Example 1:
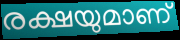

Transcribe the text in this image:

രക്ഷയുമാണ്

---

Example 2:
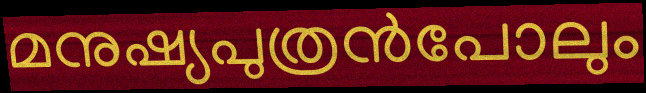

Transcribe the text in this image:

മനുഷ്യപുത്രൻപോലും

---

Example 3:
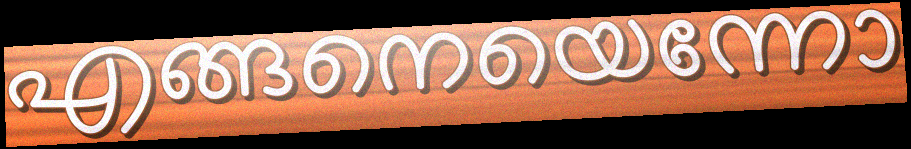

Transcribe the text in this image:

എങ്ങനെയെന്നോ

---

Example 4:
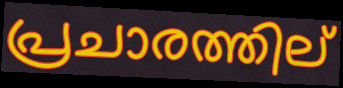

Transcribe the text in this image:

പ്രചാരത്തില്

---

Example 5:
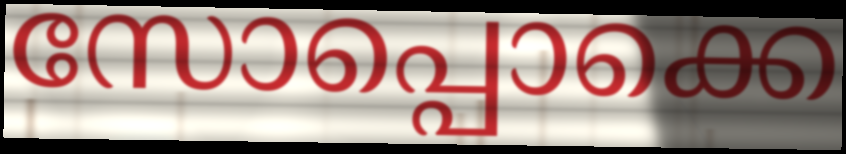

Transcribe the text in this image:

സോപ്പൊക്കെ